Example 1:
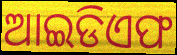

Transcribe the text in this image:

ଆଇଡିଏଫ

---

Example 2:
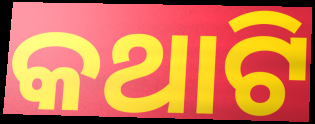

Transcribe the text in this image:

କଥାଟି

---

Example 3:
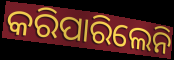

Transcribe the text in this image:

କରିପାରିଲେନି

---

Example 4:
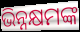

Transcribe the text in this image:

ଭିନ୍ନକ୍ଷମଙ୍କ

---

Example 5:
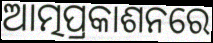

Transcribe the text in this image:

ଆତ୍ମପ୍ରକାଶନରେ